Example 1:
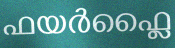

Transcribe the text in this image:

ഫയർഫ്ലൈ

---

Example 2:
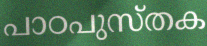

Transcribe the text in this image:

പാഠപുസ്തക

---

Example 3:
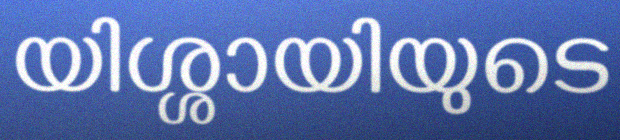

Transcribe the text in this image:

യിശ്ശായിയുടെ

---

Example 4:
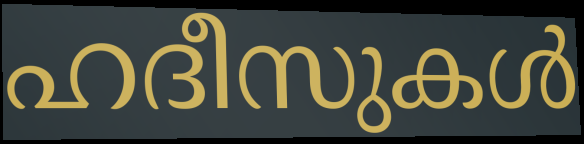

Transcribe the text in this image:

ഹദീസുകൾ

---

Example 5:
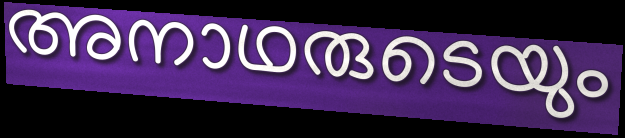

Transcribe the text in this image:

അനാഥരുടെയും